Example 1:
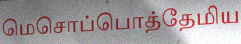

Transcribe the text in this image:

மெசொப்பொத்தேமிய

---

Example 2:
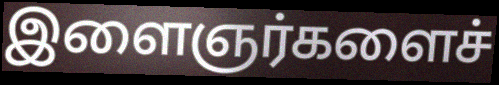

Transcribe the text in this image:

இளைஞர்களைச்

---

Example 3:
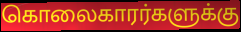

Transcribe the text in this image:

கொலைகாரர்களுக்கு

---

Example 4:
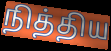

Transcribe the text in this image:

நித்திய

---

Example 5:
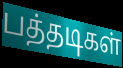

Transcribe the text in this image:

பத்தடிகள்